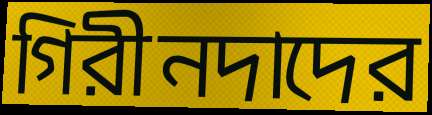
গিরীনদাদের